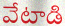
వేటాడి